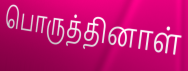
பொருத்தினாள்